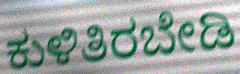
ಕುಳಿತಿರಬೇಡಿ